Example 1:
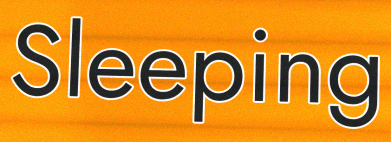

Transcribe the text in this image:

Sleeping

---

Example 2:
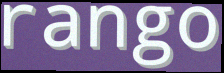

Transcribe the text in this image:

rango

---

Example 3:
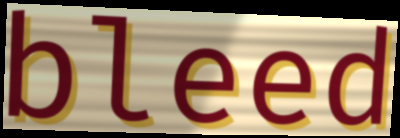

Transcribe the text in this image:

bleed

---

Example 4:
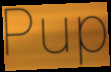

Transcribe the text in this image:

Pup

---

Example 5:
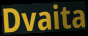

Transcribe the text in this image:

Dvaita